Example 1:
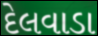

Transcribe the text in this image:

દેલવાડા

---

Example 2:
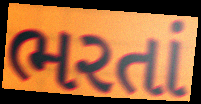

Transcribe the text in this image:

ભરતાં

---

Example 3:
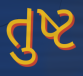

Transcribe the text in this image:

તુષ્ટ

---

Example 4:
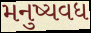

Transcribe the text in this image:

મનુષ્યવધ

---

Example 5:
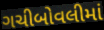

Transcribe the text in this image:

ગચીબોવલીમાં